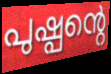
പുഷ്പന്റെ